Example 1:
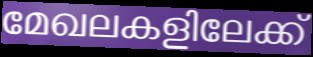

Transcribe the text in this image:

മേഖലകളിലേക്ക്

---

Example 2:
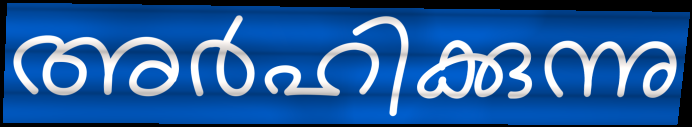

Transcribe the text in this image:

അർഹിക്കുന്നു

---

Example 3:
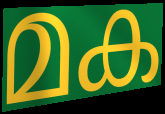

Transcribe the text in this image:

മക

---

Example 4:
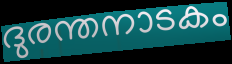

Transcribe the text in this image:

ദുരന്തനാടകം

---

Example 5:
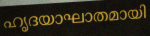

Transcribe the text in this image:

ഹൃദയാഘാതമായി